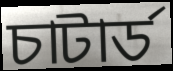
চাটার্ড